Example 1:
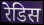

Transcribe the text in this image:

रेडिस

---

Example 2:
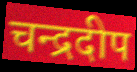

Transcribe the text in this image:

चन्द्रदीप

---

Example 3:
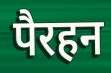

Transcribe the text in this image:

पैरहन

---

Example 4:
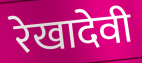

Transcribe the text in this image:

रेखादेवी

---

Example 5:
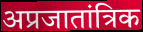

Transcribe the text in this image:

अप्रजातांत्रिक